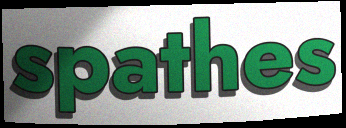
spathes